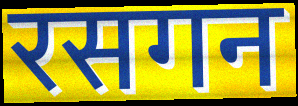
रसगन